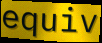
equiv